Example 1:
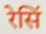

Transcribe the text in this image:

रेसिं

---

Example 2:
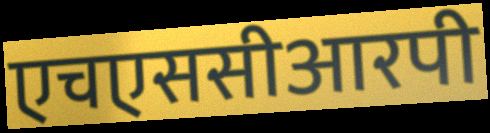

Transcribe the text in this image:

एचएससीआरपी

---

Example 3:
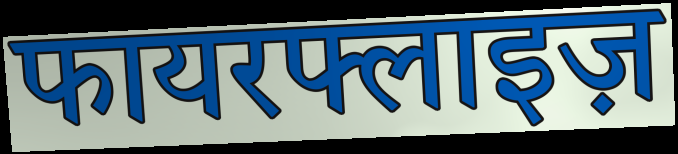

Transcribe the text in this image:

फायरफ्लाइज़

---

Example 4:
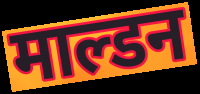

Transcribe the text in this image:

माल्डन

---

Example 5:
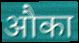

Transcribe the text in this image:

औका